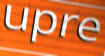
upre